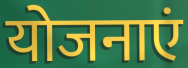
योजनाएं